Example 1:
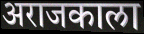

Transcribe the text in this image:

अराजकाला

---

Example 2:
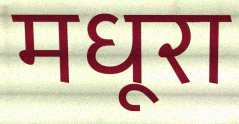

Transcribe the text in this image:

मधूरा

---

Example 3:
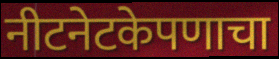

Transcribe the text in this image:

नीटनेटकेपणाचा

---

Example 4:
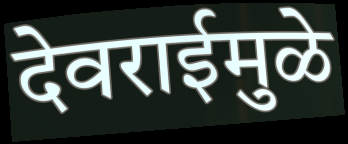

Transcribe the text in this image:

देवराईमुळे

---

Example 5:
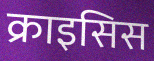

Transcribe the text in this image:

क्राइसिस